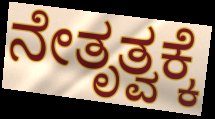
ನೇತೃತ್ವಕ್ಕೆ